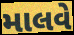
માલવે